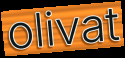
olivat